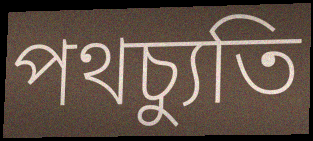
পথচ্যুতি